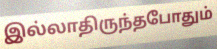
இல்லாதிருந்தபோதும்